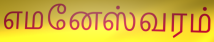
எமனேஸ்வரம்